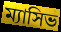
ম্যাসিভ